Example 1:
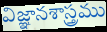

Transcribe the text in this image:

విజ్ఞానశాస్త్రము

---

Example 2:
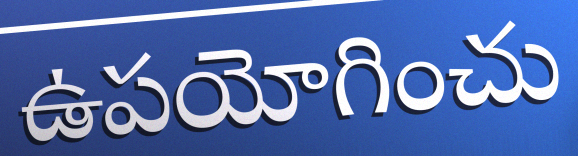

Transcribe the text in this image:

ఉపయోగించు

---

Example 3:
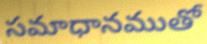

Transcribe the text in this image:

సమాధానముతో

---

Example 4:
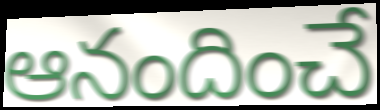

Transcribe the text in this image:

ఆనందించే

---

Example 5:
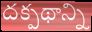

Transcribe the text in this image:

దక్పథాన్ని